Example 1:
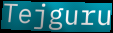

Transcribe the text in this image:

Tejguru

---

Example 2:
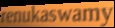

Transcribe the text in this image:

renukaswamy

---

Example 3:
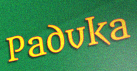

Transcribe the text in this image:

Paduka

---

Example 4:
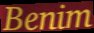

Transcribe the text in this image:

Benim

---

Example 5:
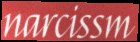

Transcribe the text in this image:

narcissm